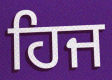
ਹਿਜ